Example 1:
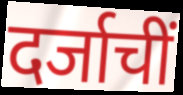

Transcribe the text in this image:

दर्जाचीं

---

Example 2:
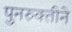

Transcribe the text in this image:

पुनरुक्तीने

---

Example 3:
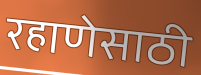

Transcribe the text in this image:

रहाणेसाठी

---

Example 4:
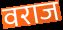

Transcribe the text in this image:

वराज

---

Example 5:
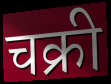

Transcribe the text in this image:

चक्री